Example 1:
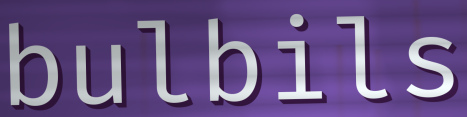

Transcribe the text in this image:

bulbils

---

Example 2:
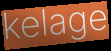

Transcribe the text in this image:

kelage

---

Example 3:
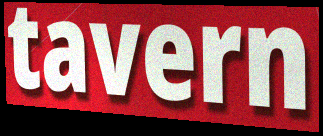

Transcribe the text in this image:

tavern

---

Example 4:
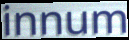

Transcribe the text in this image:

innum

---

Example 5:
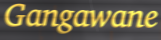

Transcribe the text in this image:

Gangawane